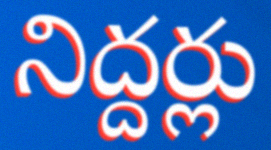
నిద్దర్లు